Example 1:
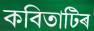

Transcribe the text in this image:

কবিতাটিৰ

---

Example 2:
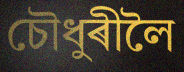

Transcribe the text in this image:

চৌধুৰীলৈ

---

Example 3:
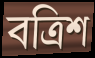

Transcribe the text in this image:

বত্ৰিশ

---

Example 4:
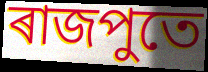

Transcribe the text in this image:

ৰাজপুতে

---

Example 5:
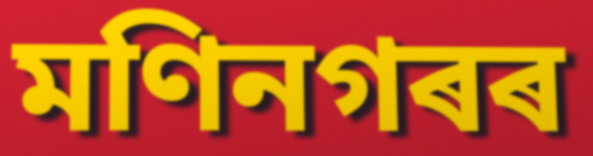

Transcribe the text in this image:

মণিনগৰৰ